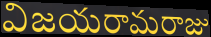
విజయరామరాజు